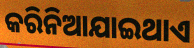
କରିନିଆଯାଇଥାଏ